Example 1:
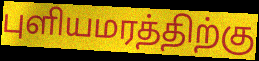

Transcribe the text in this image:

புளியமரத்திற்கு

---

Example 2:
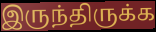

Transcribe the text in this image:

இருந்திருக்க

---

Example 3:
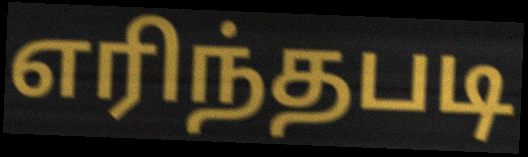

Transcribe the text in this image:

எரிந்தபடி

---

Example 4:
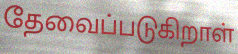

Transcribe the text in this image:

தேவைப்படுகிறாள்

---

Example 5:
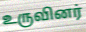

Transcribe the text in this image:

உருவினர்